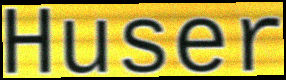
Huser